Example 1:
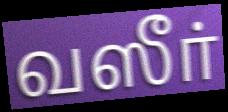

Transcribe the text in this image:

வஸீர்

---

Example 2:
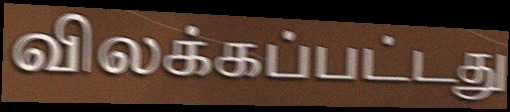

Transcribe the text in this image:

விலக்கப்பட்டது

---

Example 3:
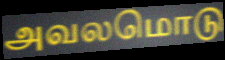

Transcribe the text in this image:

அவலமொடு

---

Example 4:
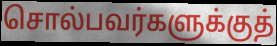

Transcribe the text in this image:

சொல்பவர்களுக்குத்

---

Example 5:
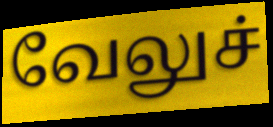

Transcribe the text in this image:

வேலுச்